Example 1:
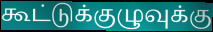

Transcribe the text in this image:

கூட்டுக்குழுவுக்கு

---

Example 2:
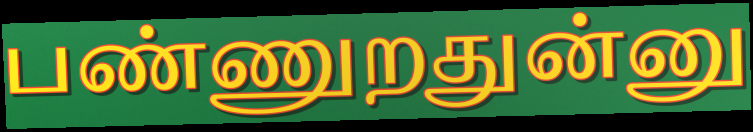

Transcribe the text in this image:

பண்ணுறதுன்னு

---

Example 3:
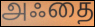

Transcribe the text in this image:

அஃதை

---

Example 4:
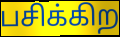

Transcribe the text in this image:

பசிக்கிற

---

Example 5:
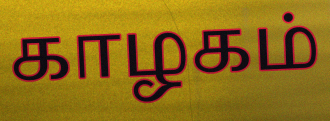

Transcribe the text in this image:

காழகம்